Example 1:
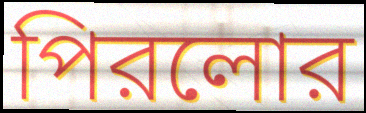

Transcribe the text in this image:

পিরলোর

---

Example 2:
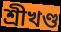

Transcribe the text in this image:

শ্রীখণ্ড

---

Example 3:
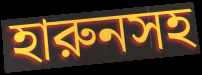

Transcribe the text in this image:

হারুনসহ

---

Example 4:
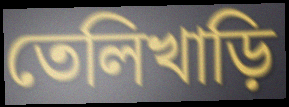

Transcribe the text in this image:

তেলিখাড়ি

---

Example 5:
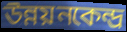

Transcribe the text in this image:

উন্নয়নকেন্দ্র